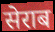
सेराब